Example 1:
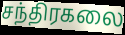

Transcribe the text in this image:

சந்திரகலை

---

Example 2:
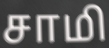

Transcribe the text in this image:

சாமி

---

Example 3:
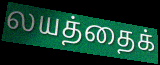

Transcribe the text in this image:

லயத்தைக்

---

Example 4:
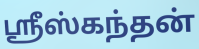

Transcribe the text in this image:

ஸ்ரீஸ்கந்தன்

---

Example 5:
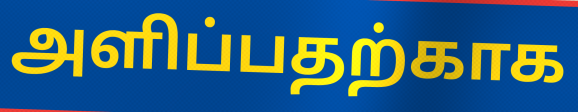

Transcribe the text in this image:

அளிப்பதற்காக